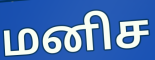
மனிச